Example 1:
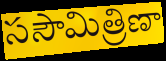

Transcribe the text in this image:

ససౌమిత్రిణా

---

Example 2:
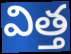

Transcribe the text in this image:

విత్త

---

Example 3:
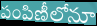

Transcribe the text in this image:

పంపిణీలోనూ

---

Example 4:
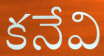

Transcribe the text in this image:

కనేవి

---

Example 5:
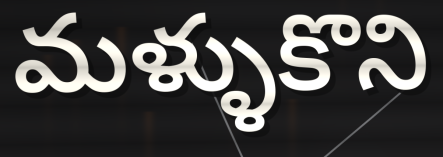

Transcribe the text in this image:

మళ్ళుకొని